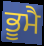
ਭੂਮੈ